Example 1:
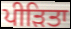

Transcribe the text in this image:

ਪੀੜਿਤਾ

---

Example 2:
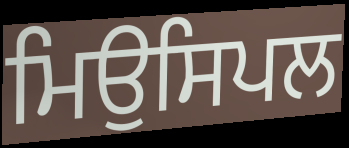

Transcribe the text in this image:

ਮਿਉਸਿਪਲ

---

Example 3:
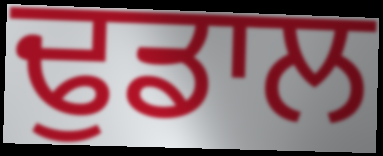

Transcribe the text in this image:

ਢੁਡਾਲ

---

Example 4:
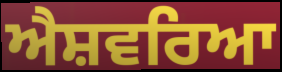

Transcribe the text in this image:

ਐਸ਼ਵਰਿਆ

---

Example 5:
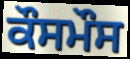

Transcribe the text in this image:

ਕੌਸਮੌਸ